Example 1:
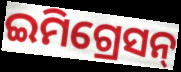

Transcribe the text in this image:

ଇମିଗ୍ରେସନ୍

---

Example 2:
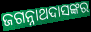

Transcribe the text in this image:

ଜଗନ୍ନାଥଦାସଙ୍କର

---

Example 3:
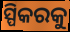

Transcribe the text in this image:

ସ୍ପିକରକୁ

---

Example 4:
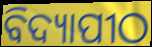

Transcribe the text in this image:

ବିଦ୍ୟାପୀଠ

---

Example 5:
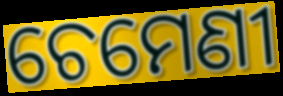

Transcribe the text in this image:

ଚେମେଣୀ